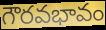
గౌరవభావం